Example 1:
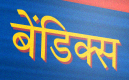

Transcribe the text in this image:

बेंडिक्स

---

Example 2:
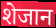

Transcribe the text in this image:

शेजान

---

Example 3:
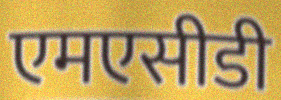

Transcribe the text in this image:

एमएसीडी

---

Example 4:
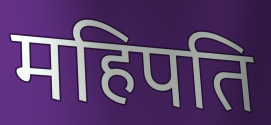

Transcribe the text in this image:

महिपति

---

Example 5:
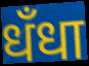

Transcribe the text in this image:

धँधा